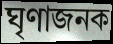
ঘৃণাজনক